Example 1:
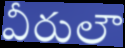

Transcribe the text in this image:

వీరులౌ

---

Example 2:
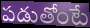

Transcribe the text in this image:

పడుతోంటే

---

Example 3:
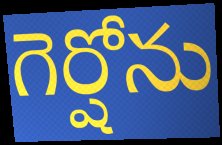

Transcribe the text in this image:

గెర్షోను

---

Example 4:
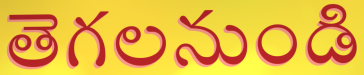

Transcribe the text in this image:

తెగలనుండి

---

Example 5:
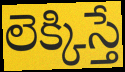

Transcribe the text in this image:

లెక్కిస్తే